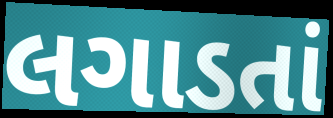
લગાડતાં